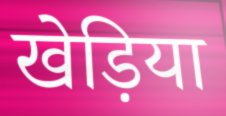
खेड़िया